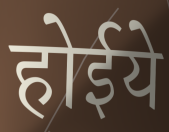
होईये